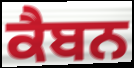
ਕੈਬਨ